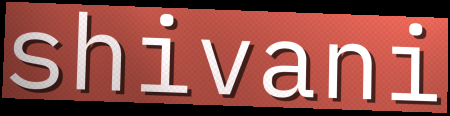
shivani